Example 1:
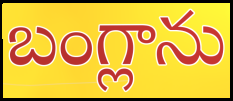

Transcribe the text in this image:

బంగ్లాను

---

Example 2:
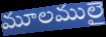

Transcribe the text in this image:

మూలములై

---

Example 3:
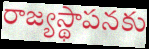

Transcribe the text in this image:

రాజ్యస్థాపనకు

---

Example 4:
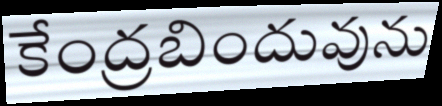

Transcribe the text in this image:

కేంద్రబిందువును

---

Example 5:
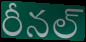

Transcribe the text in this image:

రీనల్